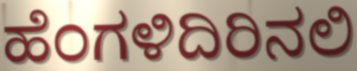
ಹೆಂಗಳಿದಿರಿನಲಿ